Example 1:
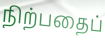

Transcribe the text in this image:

நிற்பதைப்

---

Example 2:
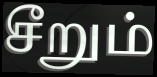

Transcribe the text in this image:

சீறும்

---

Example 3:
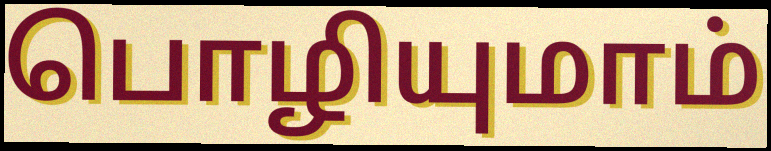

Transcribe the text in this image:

பொழியுமாம்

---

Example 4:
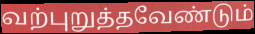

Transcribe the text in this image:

வற்புறுத்தவேண்டும்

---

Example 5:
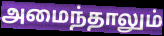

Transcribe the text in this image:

அமைந்தாலும்